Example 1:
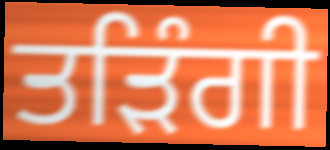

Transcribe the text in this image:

ਤੜਿੰਗੀ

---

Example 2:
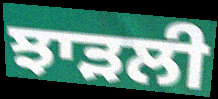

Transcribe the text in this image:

ਝਾੜਲੀ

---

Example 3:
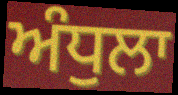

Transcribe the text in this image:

ਅੰਧੁਲਾ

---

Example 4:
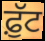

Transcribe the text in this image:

ਫ਼ੁੱਟ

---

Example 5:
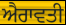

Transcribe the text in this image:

ਐਰਾਵਤੀ